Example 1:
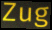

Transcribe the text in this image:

Zug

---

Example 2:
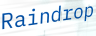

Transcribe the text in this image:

Raindrop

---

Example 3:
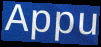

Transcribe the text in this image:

Appu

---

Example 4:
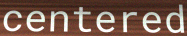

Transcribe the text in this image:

centered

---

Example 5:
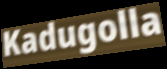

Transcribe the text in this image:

Kadugolla